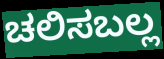
ಚಲಿಸಬಲ್ಲ